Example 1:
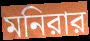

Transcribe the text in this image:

মনিরার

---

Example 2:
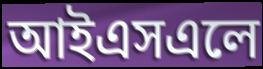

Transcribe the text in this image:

আইএসএলে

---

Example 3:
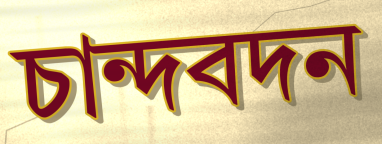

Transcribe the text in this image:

চান্দবদন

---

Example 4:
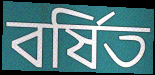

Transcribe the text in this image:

বর্ষিত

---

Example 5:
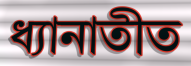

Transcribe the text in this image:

ধ্যানাতীত